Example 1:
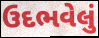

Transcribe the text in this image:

ઉદભવેલું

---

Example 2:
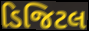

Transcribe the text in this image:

ડિજિટલ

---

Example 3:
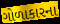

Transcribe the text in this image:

ગોળાકારના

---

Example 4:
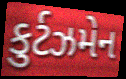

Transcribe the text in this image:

કુર્ટઝમેન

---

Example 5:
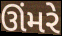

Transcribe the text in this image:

ઊંમરે